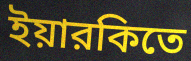
ইয়ারকিতে